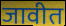
जावीत